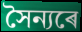
সৈন্যৰে